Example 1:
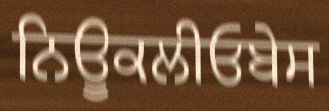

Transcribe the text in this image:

ਨਿਊਕਲੀਓਬੇਸ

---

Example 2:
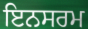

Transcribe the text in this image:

ਇਨਸਰਮ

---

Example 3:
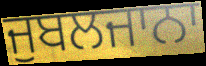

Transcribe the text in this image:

ਜੁਬਲਜਾਨਾ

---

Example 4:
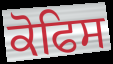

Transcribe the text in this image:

ਕੋਫਿਸ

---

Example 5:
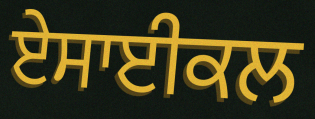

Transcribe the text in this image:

ਏਸਾਈਕਲ